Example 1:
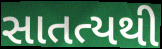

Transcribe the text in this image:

સાતત્યથી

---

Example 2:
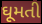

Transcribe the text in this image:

ઘૂમતી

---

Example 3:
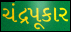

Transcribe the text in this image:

ચંદ્રપૂકાર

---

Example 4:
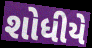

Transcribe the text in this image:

શોધીયે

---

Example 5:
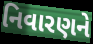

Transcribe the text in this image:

નિવારણને